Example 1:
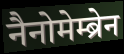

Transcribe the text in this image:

नैनोमेम्ब्रेन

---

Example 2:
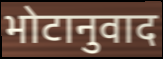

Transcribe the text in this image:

भोटानुवाद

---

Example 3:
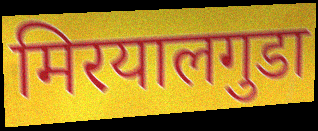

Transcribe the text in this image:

मिरयालगुडा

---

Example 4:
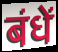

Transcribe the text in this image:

बंधें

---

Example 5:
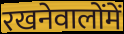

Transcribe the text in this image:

रखनेवालोंमें